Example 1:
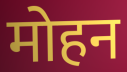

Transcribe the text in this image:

मोहन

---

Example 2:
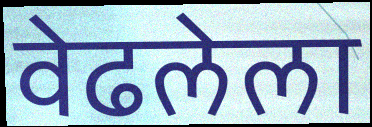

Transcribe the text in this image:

वेढलेला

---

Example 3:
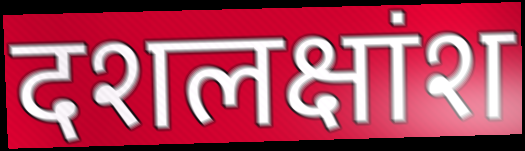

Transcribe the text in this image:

दशलक्षांश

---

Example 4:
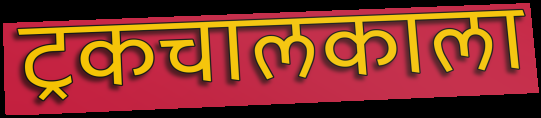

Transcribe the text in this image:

ट्रकचालकाला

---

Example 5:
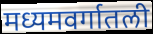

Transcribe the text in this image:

मध्यमवर्गातली